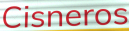
Cisneros